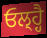
ਓਲ੍ਹ੍ਹੈ